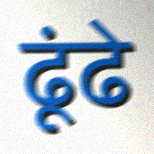
ढूंढे